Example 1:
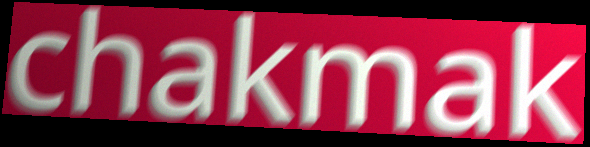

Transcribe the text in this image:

chakmak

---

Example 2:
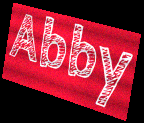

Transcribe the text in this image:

Abby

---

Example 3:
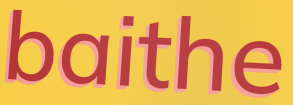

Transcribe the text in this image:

baithe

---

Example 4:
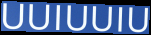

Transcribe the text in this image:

UUIUUIU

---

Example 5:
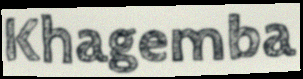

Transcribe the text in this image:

Khagemba